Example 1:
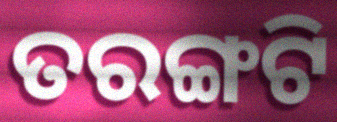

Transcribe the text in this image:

ତରଙ୍ଗଟି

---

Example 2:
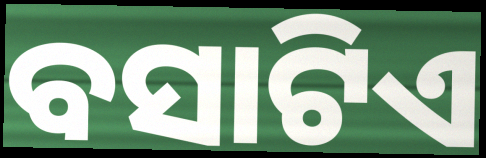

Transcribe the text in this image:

ବସାଟିଏ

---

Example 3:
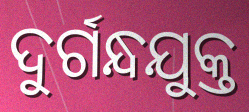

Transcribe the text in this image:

ଦୁର୍ଗନ୍ଧଯୁକ୍ତ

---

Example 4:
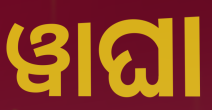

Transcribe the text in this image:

ୱାଘା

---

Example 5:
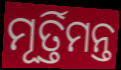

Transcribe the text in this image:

ମୂର୍ତ୍ତିମନ୍ତ